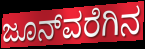
ಜೂನ್‌ವರೆಗಿನ